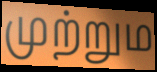
முற்றும